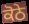
ਕੋਠੇ